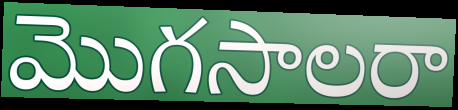
మొగసాలరా